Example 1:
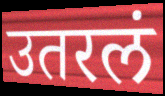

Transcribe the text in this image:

उतरलं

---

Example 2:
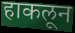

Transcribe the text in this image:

हाकलून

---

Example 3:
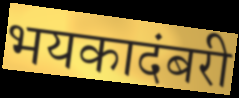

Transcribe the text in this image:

भयकादंबरी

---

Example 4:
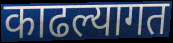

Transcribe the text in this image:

काढल्यागत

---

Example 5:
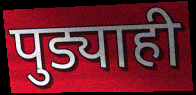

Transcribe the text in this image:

पुड्याही